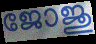
ജോജു